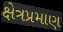
ક્ષેત્રપ્રમાણ